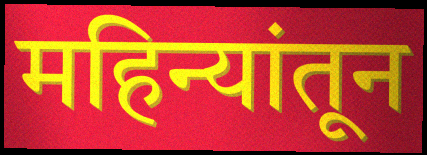
महिन्यांतून